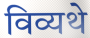
विव्यथे